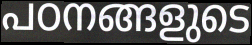
പഠനങ്ങളുടെ